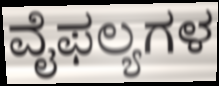
ವೈಫಲ್ಯಗಳ